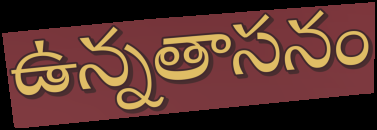
ఉన్నతాసనం